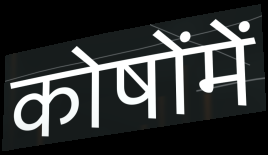
कोषोंमें